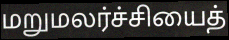
மறுமலர்ச்சியைத்